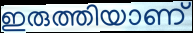
ഇരുത്തിയാണ്